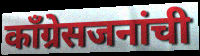
काँग्रेसजनांची